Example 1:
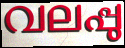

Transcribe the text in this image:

വലപ്പു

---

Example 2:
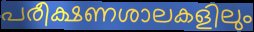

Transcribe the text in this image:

പരീക്ഷണശാലകളിലും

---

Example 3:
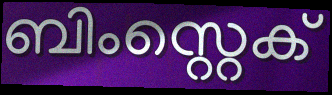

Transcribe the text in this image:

ബിംസ്റ്റെക്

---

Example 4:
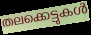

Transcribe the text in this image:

തലക്കെട്ടുകൾ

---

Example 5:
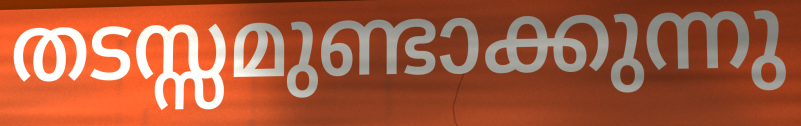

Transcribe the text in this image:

തടസ്സമുണ്ടാക്കുന്നു